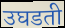
उघडती